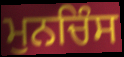
ਮੁਨਚਿੰਸ